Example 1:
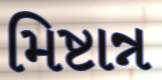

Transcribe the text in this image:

મિષ્ટાન્ન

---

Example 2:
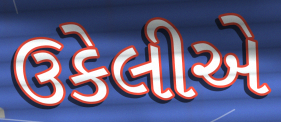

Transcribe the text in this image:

ઉકેલીએ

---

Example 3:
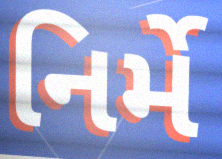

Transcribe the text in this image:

નિર્મે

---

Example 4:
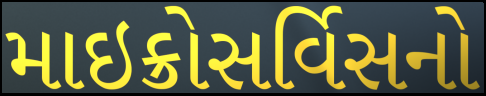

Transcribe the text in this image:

માઇક્રોસર્વિસનો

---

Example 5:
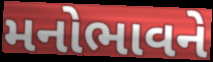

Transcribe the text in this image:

મનોભાવને